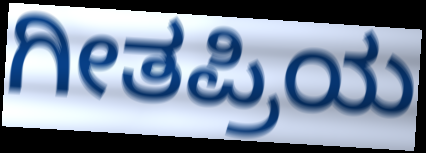
ಗೀತಪ್ರಿಯ